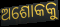
ଅଶୋକକୁ